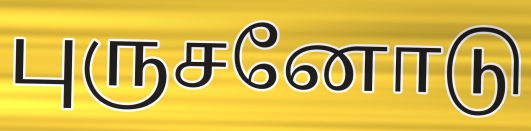
புருசனோடு